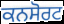
ਕਨਸੋਰਟ